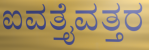
ಐವತ್ತೈವತ್ತರ